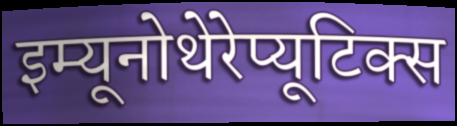
इम्यूनोथेरेप्यूटिक्स